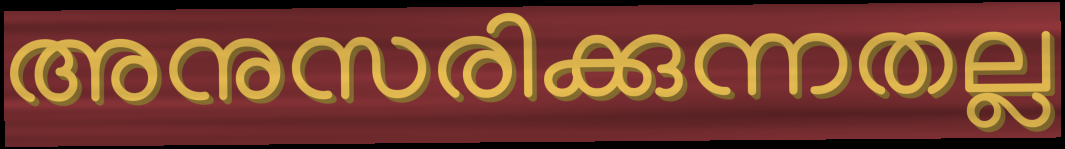
അനുസരിക്കുന്നതല്ല